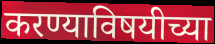
करण्याविषयीच्या